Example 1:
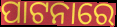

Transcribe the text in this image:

ପାଟନାରେ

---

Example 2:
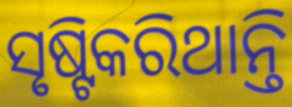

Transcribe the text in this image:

ସୃଷ୍ଟିକରିଥାନ୍ତି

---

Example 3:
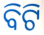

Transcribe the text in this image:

ବିଟି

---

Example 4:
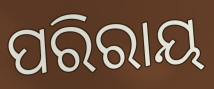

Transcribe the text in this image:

ପରିରାୟ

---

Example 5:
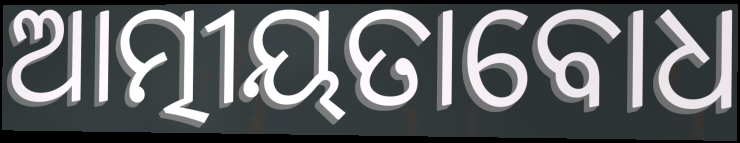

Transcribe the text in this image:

ଆତ୍ମୀୟତାବୋଧ